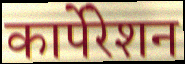
कार्पेरेशन